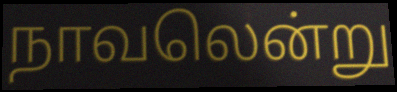
நாவலென்று